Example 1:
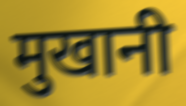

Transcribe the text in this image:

मुखानी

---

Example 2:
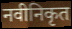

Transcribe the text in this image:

नवीनिकृत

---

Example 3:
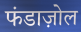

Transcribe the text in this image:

फंडाज़ोल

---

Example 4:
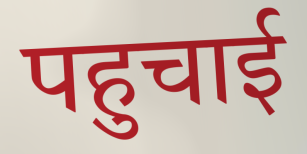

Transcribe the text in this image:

पहुचाई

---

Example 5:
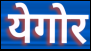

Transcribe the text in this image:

येगोर